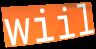
wiil